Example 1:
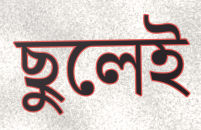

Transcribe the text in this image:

ছুলেই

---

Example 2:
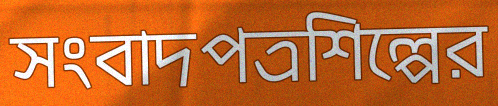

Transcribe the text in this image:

সংবাদপত্রশিল্পের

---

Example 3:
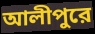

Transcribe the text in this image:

আলীপুরে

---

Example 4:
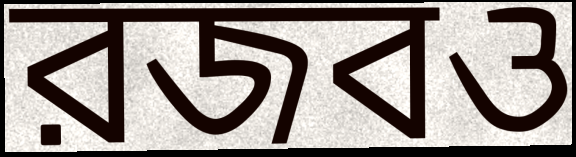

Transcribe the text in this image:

রজবও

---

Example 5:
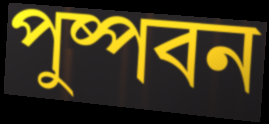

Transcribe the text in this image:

পুষ্পবন